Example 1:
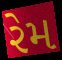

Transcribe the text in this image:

રેમ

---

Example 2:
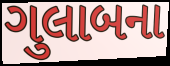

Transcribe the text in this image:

ગુલાબના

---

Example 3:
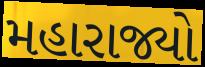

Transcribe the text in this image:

મહારાજ્યો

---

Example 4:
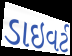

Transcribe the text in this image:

ડાઇવર્ટ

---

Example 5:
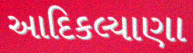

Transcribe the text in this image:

આદિકલ્યાણા